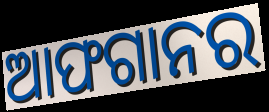
ଆଫଗାନର